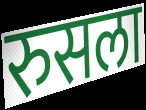
रुसला